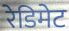
रेडिमेट